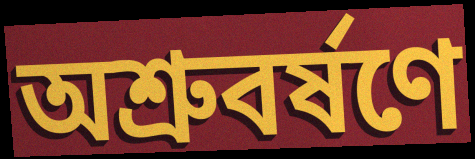
অশ্রুবর্ষণে